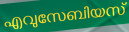
എവുസേബിയസ്